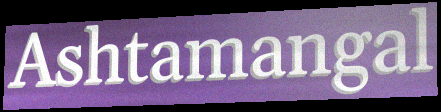
Ashtamangal